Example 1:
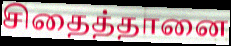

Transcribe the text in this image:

சிதைத்தானை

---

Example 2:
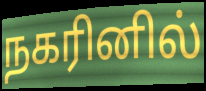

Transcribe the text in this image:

நகரினில்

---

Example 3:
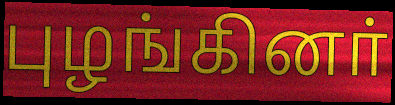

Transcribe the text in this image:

புழங்கினர்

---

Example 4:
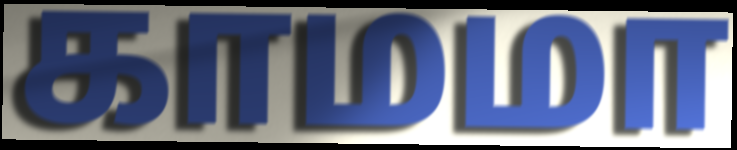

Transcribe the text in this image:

காமமா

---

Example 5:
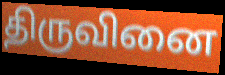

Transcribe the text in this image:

திருவினை